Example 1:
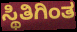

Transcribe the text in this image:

ಸ್ಥಿತಿಗಿಂತ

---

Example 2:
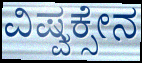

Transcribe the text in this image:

ವಿಷ್ವಕ್ಸೇನ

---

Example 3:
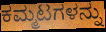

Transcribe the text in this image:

ಕಮ್ಮಟಗಳನ್ನು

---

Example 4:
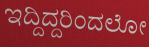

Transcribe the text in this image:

ಇದ್ದಿದ್ದರಿಂದಲೋ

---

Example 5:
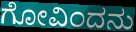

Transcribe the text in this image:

ಗೋವಿಂದನು